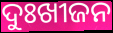
ଦୁଃଖୀଜନ